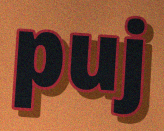
puj